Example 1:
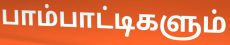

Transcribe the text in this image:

பாம்பாட்டிகளும்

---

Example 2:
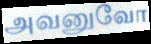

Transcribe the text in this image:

அவனுவோ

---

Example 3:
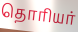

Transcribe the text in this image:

தொரியர்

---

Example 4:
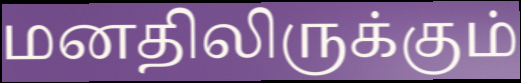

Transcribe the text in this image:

மனதிலிருக்கும்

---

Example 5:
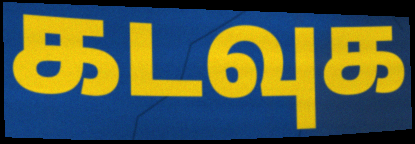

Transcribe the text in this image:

கடவுக